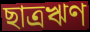
ছাত্রঋণ